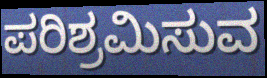
ಪರಿಶ್ರಮಿಸುವ